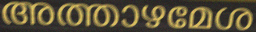
അത്താഴമേശ